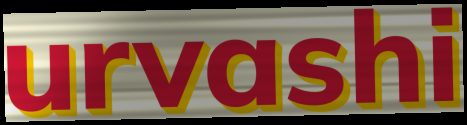
urvashi